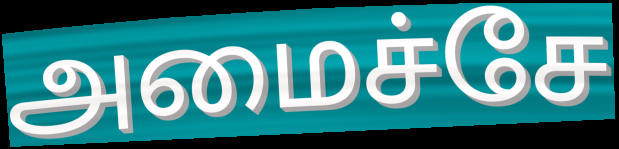
அமைச்சே